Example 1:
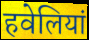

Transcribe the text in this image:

हवेलियां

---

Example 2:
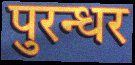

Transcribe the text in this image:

पुरन्धर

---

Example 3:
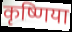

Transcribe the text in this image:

कृष्णिया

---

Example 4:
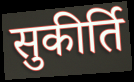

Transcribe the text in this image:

सुकीर्ति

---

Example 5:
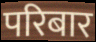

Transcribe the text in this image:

परिबार